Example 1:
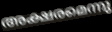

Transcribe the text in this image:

അക്ഷരമെന്നു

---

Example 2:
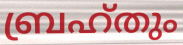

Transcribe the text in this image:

ബ്രഹ്തും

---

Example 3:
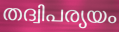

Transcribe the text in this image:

തദ്വിപര്യയം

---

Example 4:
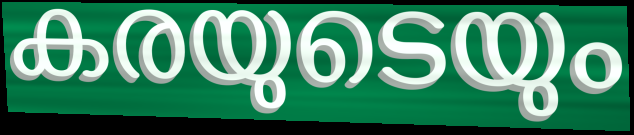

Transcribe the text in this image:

കരയുടെയും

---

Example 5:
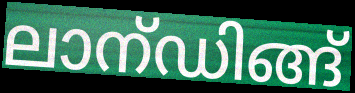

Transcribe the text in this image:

ലാന്ഡിങ്ങ്